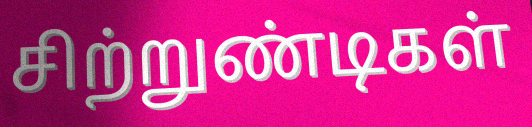
சிற்றுண்டிகள்